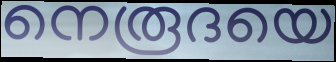
നെരൂദയെ